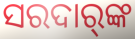
ସରଦାର୍‍ଙ୍କ